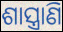
ଶାସ୍ତ୍ରାଣି